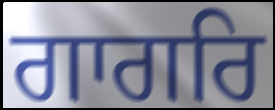
ਗਾਗਰਿ